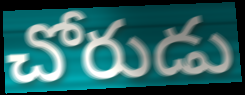
చోరుడు